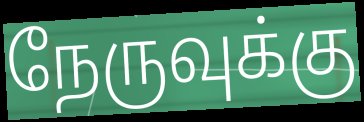
நேருவுக்கு